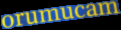
orumucam